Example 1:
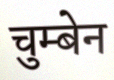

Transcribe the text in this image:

चुम्बेन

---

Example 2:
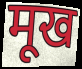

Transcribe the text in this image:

मूख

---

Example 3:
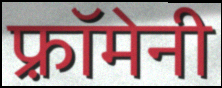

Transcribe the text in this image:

फ़्रॉमेनी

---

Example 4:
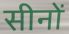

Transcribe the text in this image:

सीनों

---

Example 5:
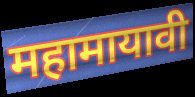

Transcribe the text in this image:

महामायावी